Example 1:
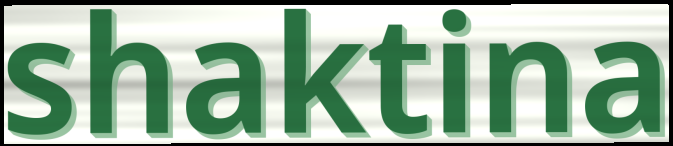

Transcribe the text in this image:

shaktina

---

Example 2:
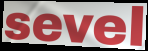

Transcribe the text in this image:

sevel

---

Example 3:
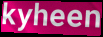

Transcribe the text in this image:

kyheen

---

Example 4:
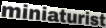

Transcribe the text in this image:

miniaturist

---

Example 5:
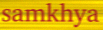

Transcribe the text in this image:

samkhya